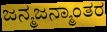
ಜನ್ಮಜನ್ಮಾಂತರ